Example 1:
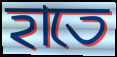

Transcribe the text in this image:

হাতে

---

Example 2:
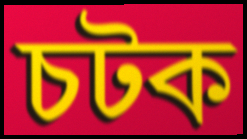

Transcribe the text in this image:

চটক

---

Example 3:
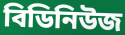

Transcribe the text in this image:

বিডিনিউজ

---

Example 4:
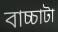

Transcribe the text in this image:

বাচ্চাটা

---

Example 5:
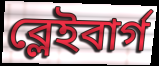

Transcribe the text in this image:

ব্লেইবার্গ